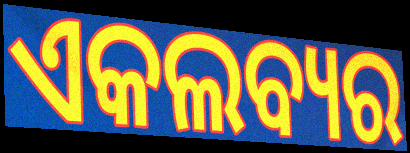
ଏକଲବ୍ୟର